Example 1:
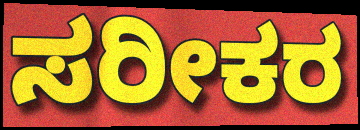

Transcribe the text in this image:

ಸರೀಕರ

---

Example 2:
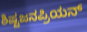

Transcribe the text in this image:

ಶಿಷ್ಟಜನಪ್ರಿಯನ್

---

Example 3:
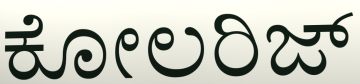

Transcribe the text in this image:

ಕೋಲರಿಜ್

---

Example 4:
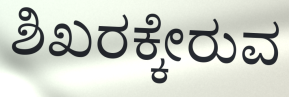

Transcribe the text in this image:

ಶಿಖರಕ್ಕೇರುವ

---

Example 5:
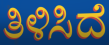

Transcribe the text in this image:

ತಿಳಿಸಿದೆ